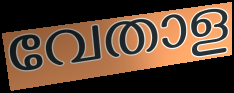
വേതാള